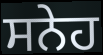
ਸਨੇਹ